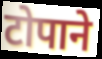
टोपाने